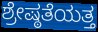
ಶ್ರೇಷ್ಠತೆಯತ್ತ